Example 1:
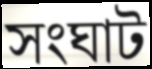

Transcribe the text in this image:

সংঘাট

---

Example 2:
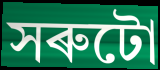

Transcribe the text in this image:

সৰুটো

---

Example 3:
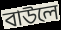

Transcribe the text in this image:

বাউলে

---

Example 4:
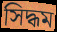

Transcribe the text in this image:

সিদ্ধম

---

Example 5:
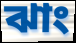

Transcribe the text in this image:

ঝাং